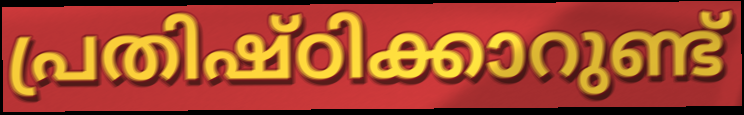
പ്രതിഷ്ഠിക്കാറുണ്ട്